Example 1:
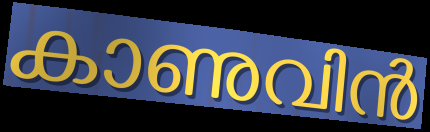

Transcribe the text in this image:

കാണുവിൻ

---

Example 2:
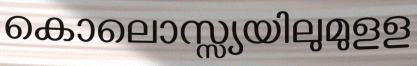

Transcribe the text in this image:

കൊലൊസ്സ്യയിലുമുളള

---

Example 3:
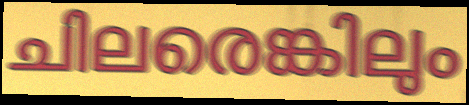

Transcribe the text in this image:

ചിലരെങ്കിലും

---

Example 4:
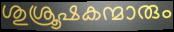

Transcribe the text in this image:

ശുശ്രൂഷകന്മാരും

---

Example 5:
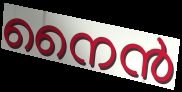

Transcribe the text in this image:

നൈൻ